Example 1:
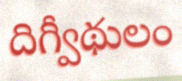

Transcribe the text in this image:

దిగ్వీథులం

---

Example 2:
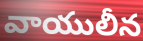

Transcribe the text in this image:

వాయులీన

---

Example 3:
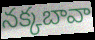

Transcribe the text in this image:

నక్కబావా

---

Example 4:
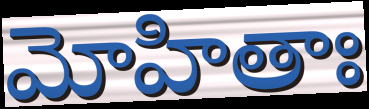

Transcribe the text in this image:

మోహితాః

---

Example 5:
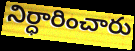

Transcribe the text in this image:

నిర్ధారించారు